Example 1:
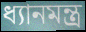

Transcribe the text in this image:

ধ্যানমন্ত্ৰ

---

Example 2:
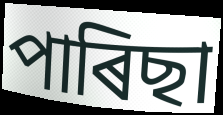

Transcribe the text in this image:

পাৰিছা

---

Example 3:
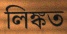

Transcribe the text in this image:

লিঙ্কত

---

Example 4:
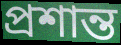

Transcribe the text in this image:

প্ৰশান্ত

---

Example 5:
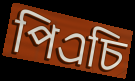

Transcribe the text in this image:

পিএচি